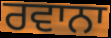
ਰਵਾਨਾ